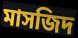
মাসজিদ